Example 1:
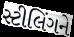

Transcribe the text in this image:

સ્ટીલિંગને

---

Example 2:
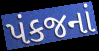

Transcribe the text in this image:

પંકજનાં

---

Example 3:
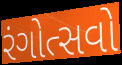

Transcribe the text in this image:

રંગોત્સવો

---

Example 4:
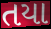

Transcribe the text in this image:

તયા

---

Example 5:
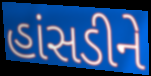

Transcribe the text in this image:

હાંસડીને